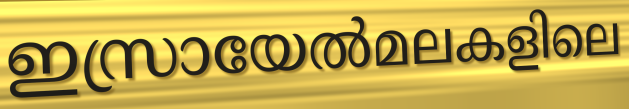
ഇസ്രായേൽമലകളിലെ